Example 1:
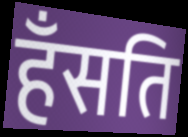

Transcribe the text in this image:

हँसति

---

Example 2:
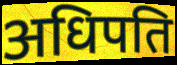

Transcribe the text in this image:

अधिपति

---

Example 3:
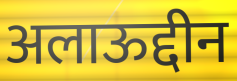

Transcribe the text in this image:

अलाऊद्दीन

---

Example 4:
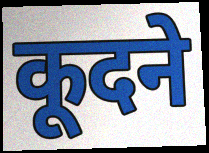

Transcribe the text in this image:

कूदने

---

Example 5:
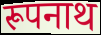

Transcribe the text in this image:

रूपनाथ